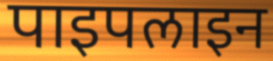
पाइपलाइन